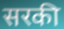
सरकी